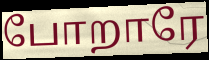
போறாரே